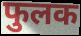
फुलक